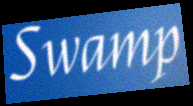
Swamp